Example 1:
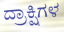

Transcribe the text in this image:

ದ್ರಾಕ್ಷಿಗಳ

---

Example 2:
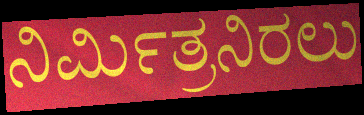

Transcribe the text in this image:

ನಿರ್ಮಿತ್ರನಿರಲು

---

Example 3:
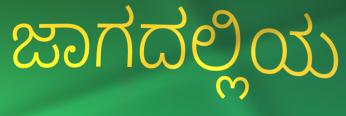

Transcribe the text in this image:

ಜಾಗದಲ್ಲಿಯ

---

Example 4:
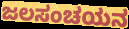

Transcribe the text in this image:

ಜಲಸಂಚಯನ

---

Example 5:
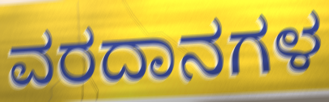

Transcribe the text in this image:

ವರದಾನಗಳ